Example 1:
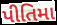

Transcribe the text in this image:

પીતિમા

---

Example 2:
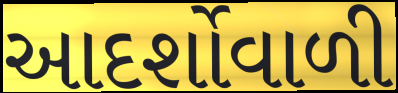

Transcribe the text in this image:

આદર્શોવાળી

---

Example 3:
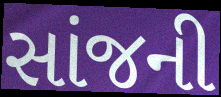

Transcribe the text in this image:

સાંજની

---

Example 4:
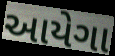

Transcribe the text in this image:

આયેગા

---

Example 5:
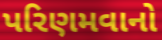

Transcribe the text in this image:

પરિણમવાનો